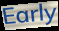
Early